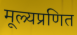
मूल्यप्रणित